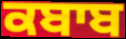
ਕਬਾਬ